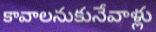
కావాలనుకునేవాళ్లు